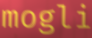
mogli